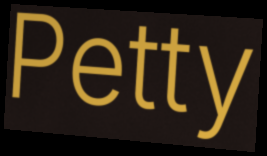
Petty